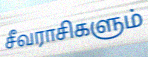
சீவராசிகளும்